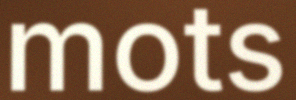
mots